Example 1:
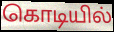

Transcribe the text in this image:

கொடியில்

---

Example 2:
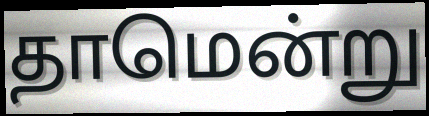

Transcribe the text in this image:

தாமென்று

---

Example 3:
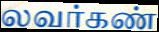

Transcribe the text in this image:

லவர்கண்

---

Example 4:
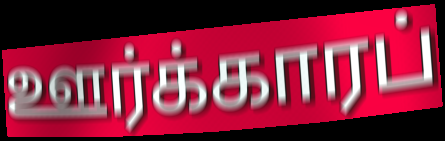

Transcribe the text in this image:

ஊர்க்காரப்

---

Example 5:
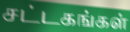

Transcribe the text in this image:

சட்டகங்கள்